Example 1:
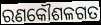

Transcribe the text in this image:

ରଣକୌଶଳଗତ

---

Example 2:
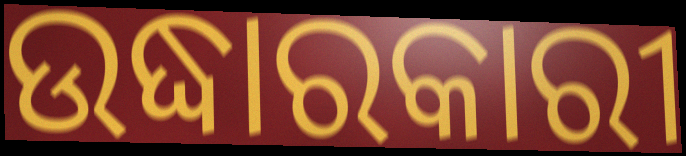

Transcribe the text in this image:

ଉଦ୍ଧାରକାରୀ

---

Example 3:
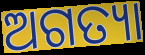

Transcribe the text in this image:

ଅଗତ୍ୟା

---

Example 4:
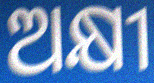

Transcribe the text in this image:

ଅକ୍ଷୀ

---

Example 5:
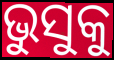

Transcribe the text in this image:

ଭୁସୁକୁ